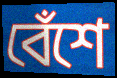
বেঁশে